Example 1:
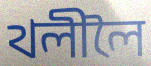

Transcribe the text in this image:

থলীলৈ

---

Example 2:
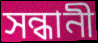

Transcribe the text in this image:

সন্ধানী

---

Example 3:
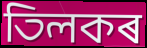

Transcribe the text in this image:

তিলকৰ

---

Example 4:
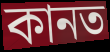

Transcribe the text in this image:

কানত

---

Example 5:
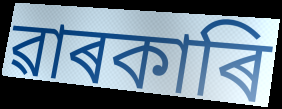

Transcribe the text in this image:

ৱাৰকাৰি